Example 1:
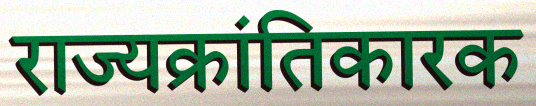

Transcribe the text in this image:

राज्यक्रांतिकारक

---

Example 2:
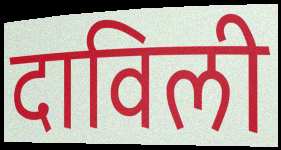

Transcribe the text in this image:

दाविली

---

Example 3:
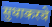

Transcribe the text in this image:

सुधाकरचे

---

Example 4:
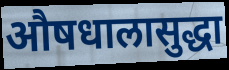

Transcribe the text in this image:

औषधालासुद्धा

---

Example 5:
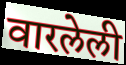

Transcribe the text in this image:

वारलेली